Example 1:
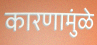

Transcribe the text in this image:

कारणामुंळे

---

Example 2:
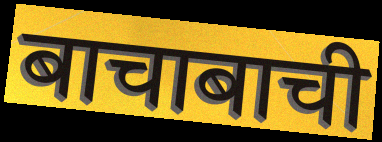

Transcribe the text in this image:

बाचाबाची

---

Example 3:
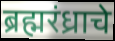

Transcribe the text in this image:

ब्रह्मरंध्राचे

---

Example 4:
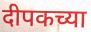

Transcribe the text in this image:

दीपकच्या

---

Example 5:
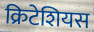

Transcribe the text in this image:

क्रिटेशियस